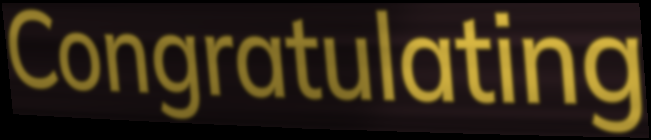
Congratulating